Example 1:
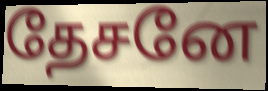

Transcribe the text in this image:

தேசனே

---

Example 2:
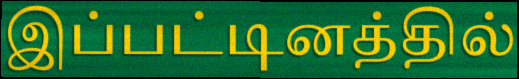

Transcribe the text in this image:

இப்பட்டினத்தில்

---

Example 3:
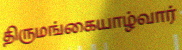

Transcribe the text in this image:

திருமங்கையாழ்வார்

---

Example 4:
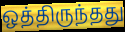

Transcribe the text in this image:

ஒத்திருந்தது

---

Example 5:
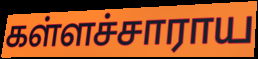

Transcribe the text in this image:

கள்ளச்சாராய